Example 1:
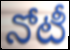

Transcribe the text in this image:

నోటీ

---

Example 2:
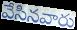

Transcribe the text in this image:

వేసినవారు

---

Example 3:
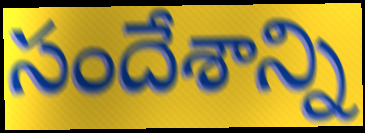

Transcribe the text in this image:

సందేశాన్ని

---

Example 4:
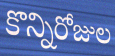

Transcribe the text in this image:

కొన్నిరోజుల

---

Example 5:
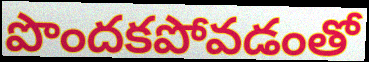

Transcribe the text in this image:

పొందకపోవడంతో